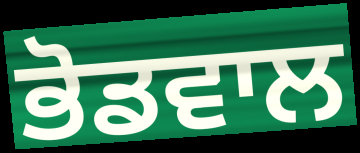
ਭੋਡਵਾਲ